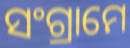
ସଂଗ୍ରାମେ